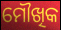
ମୌଖିକ